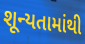
શૂન્યતામાંથી